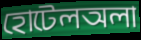
হোটেলঅলা